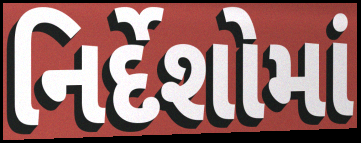
નિર્દેશોમાં